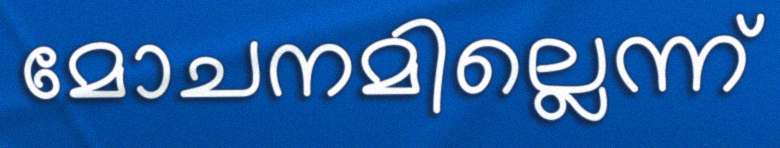
മോചനമില്ലെന്ന്